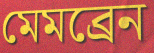
মেমব্ৰেন